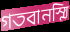
গতবানস্মি